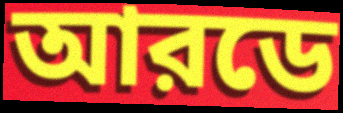
আরডে